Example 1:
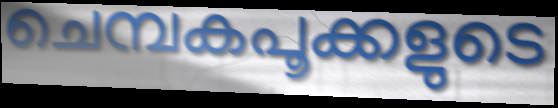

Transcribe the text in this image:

ചെമ്പകപൂക്കളുടെ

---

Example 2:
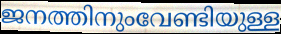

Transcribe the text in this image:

ജനത്തിനുംവേണ്ടിയുള്ള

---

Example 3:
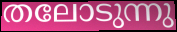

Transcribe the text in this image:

തലോടുന്നു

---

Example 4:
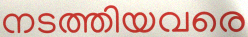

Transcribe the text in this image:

നടത്തിയവരെ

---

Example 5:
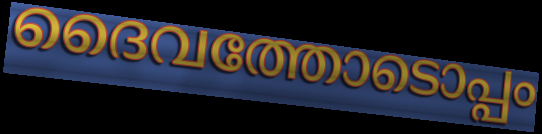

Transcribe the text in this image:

ദൈവത്തോടൊപ്പം